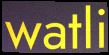
watli